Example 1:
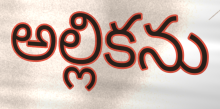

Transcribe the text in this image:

అల్లికను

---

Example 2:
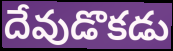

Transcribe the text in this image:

దేవుడొకడు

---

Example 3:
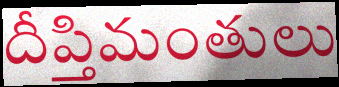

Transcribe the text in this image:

దీప్తిమంతులు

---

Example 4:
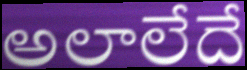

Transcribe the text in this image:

అలాలేదే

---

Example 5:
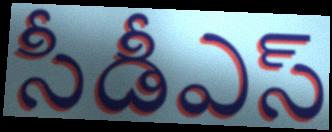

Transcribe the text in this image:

సీడీఎస్